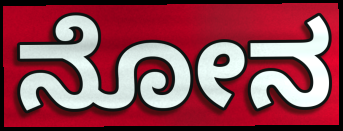
ನೋನ